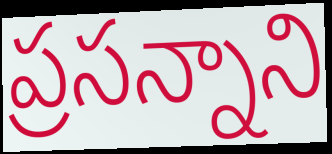
ప్రసన్నాని